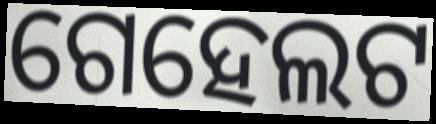
ଗେହେଲଟ